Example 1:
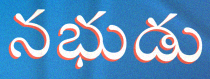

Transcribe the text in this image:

నభుడు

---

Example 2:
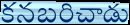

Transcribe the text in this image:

కనబరిచాడు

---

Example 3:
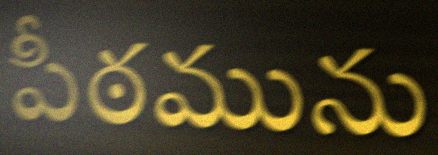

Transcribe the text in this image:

పీఠమును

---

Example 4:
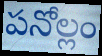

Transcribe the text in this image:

పనోల్లం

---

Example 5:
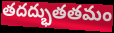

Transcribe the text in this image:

తదద్భుతతమం